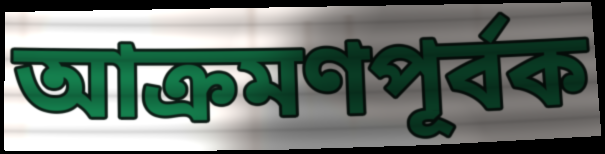
আক্রমণপূর্বক